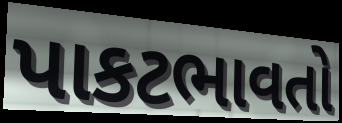
પાકટભાવતો